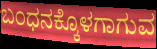
ಬಂಧನಕ್ಕೊಳಗಾಗುವ